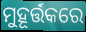
ମୁହୂର୍ତ୍ତକରେ